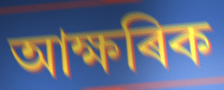
আক্ষৰিক